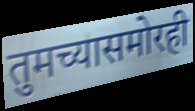
तुमच्यासमोरही